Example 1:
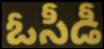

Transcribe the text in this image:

ఓసీడీ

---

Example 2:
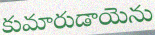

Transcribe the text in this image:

కుమారుడాయెను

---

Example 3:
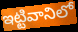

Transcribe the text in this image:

ఇట్టివానిలో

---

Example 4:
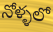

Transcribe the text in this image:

నోళ్ళలో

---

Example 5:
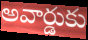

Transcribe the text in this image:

అవార్డుకు